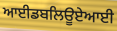
ਆਈਡਬਲਿਊਏਆਈ